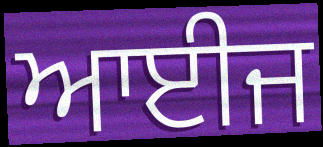
ਆਈਜ